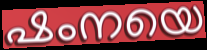
ഷംനയെ